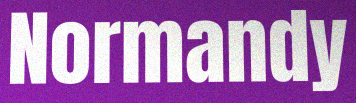
Normandy